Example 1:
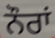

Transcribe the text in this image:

ਨੌਰਾਂ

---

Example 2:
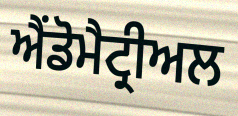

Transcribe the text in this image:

ਐਂਡੋਮੈਟ੍ਰੀਅਲ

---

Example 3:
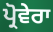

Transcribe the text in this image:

ਪ੍ਰੋਵੇਰਾ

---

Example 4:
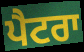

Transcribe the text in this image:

ਪੈਟਰਾ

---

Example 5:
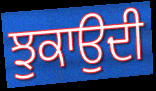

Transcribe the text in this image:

ਝੁਕਾਉਦੀ